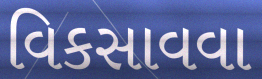
વિકસાવવા